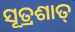
ସୂତ୍ରଶାତ୍